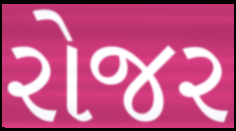
રોજર